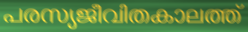
പരസ്യജീവിതകാലത്ത്